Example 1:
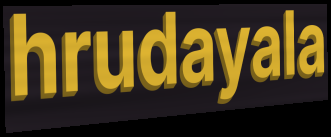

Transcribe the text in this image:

hrudayala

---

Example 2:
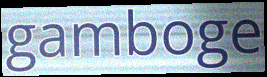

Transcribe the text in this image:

gamboge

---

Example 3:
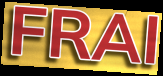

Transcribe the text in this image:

FRAI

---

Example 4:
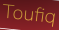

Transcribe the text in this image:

Toufiq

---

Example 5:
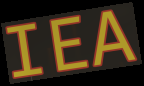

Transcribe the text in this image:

IEA